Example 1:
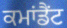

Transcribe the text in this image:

ਕਮਾਂਡੈਂਟ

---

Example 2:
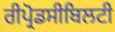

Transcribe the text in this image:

ਰੀਪ੍ਰੋਡਸੀਬਿਲਟੀ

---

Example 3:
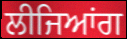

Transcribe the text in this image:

ਲੀਜਿਆਂਗ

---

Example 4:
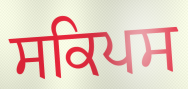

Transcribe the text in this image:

ਸਕਿਪਸ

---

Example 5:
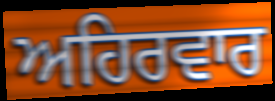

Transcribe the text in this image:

ਅਹਿਰਵਾਰ